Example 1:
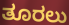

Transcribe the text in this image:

ತೂರಲು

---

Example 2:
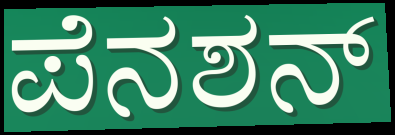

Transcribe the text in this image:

ಪೆನಶನ್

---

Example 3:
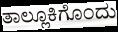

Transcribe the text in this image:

ತಾಲ್ಲೂಕಿಗೊಂದು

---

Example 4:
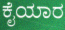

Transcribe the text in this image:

ಕೈಯಾರ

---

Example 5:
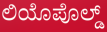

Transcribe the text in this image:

ಲಿಯೊಪೊಲ್ಡ್